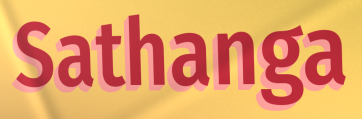
Sathanga